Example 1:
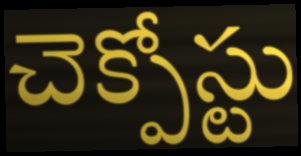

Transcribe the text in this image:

చెక్పోస్టు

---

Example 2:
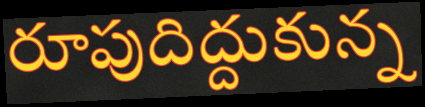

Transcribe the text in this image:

రూపుదిద్దుకున్న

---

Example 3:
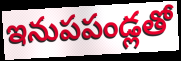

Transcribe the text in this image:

ఇనుపపండ్లతో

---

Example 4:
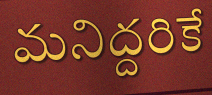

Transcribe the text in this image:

మనిద్దరికే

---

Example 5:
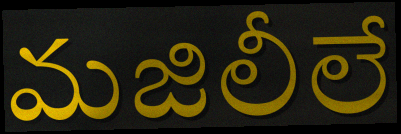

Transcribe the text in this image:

మజిలీలే